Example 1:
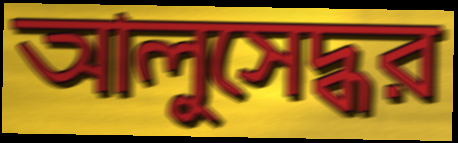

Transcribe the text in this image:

আলুসেদ্ধর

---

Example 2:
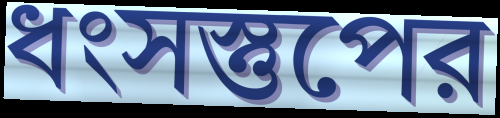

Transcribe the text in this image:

ধংসস্তুপের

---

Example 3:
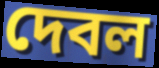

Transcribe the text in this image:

দেবল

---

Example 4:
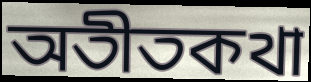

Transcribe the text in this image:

অতীতকথা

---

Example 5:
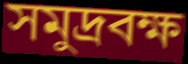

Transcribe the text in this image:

সমুদ্রবক্ষ